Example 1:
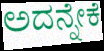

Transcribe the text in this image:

ಅದನ್ನೇಕೆ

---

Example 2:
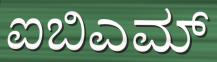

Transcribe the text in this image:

ಐಬಿಎಮ್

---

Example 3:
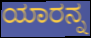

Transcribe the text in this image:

ಯಾರನ್ನ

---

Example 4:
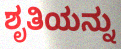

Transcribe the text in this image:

ಶೃತಿಯನ್ನು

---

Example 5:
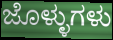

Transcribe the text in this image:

ಜೊಳ್ಳುಗಳು